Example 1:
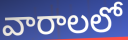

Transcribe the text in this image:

వారాలలో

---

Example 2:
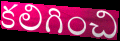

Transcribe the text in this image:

కలిగించి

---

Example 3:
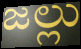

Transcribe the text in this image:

జల్లు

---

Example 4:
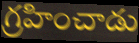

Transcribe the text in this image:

గ్రహించాడు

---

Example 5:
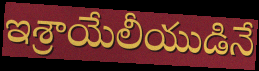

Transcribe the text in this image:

ఇశ్రాయేలీయుడినే